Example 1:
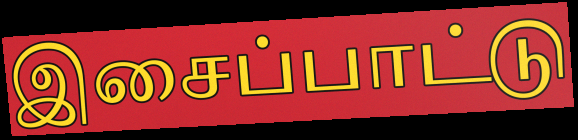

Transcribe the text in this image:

இசைப்பாட்டு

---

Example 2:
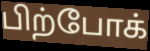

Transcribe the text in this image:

பிற்போக்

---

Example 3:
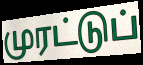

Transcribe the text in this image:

முரட்டுப்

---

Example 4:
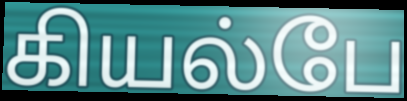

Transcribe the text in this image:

கியல்பே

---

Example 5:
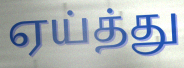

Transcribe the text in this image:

ஏய்த்து